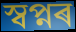
স্বপ্নৰ